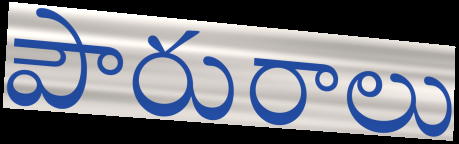
పౌరురాలు